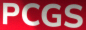
PCGS